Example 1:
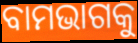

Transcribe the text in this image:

ବାମଭାଗକୁ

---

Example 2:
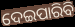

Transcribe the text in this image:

ଦେଇପାରିବି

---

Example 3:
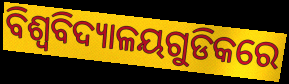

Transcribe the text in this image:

ବିଶ୍ୱବିଦ୍ୟାଳୟଗୁଡିକରେ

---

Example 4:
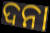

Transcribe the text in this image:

ଦନା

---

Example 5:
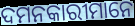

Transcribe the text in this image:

ଦମନକାରୀମାନେ